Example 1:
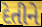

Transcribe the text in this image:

દેતીને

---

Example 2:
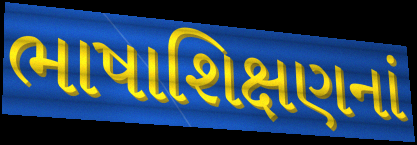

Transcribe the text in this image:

ભાષાશિક્ષણનાં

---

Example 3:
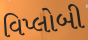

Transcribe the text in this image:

વિપ્લોબી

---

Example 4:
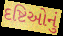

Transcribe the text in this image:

દષ્ટિઓનું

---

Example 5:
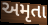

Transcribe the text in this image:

અમૃતા